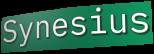
Synesius